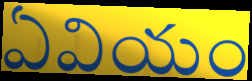
ఏవియం